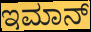
ಇಮಾನ್